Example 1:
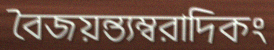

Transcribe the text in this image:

বৈজয়ন্ত্যম্বরাদিকং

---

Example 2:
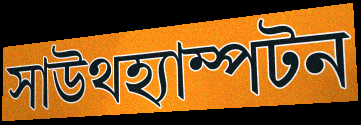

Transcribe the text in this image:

সাউথহ্যাম্পটন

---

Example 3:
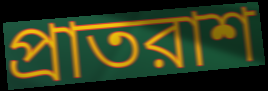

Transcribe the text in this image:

প্রাতরাশ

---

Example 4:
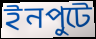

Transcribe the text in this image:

ইনপুটে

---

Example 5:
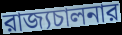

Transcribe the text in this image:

রাজ্যচালনার